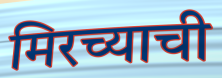
मिरच्याची